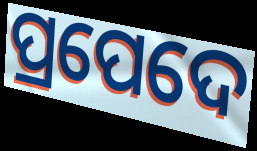
ପ୍ରପେଦେ